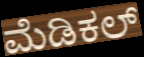
ಮೆಡಿಕಲ್